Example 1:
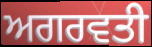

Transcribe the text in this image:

ਅਗਰਵਤੀ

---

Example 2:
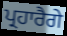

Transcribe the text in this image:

ਪ੍ਰਹਾਰੈਗੇ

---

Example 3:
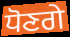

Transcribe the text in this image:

ਧੋਣਗੇ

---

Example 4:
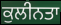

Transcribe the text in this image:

ਕੁਲੀਨਤਾ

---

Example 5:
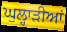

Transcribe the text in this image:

ਘੁਲ੍ਹਾੜੀਆਂ